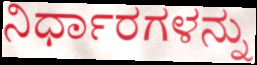
ನಿರ್ಧಾರಗಳನ್ನು